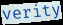
verity